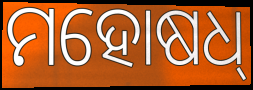
ମହୋଷଧ୍